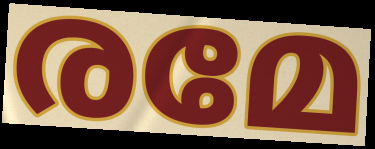
രമേ